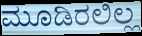
ಮೂಡಿರಲಿಲ್ಲ